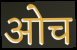
ओच